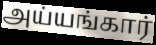
அய்யங்கார்